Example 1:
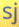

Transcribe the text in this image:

sj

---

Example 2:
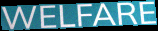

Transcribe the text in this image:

WELFARE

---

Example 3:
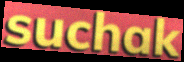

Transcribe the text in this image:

suchak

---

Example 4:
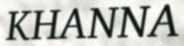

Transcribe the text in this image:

KHANNA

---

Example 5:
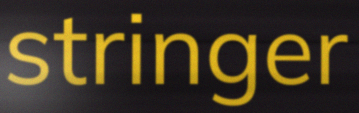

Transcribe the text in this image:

stringer